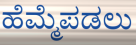
ಹೆಮ್ಮೆಪಡಲು